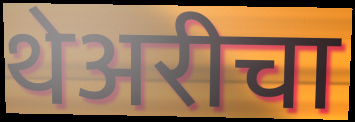
थेअरीचा